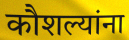
कौशल्यांना